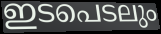
ഇടപെടലും